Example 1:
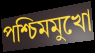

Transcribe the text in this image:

পশ্চিমমুখো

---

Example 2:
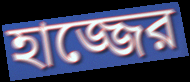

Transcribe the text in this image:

হাজ্জের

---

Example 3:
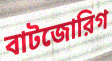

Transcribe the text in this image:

বাটজোরিগ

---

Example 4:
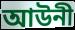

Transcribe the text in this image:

আউনী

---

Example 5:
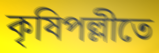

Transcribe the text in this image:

কৃষিপল্লীতে